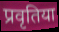
प्रवृतिया